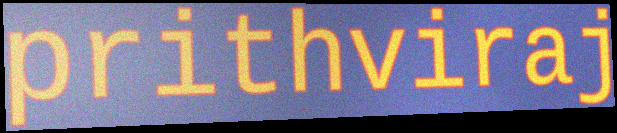
prithviraj